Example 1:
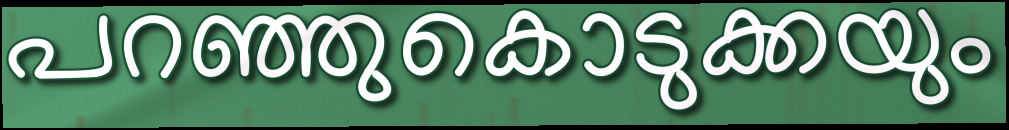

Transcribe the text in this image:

പറഞ്ഞുകൊടുക്കയും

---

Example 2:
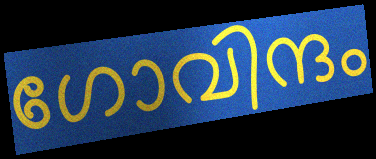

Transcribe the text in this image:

ഗോവിന്ദം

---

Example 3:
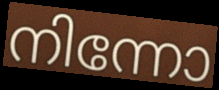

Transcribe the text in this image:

നിന്നോ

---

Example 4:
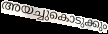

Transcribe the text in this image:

അയച്ചുകൊടുക്കും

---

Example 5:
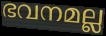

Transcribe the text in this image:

ഭവനമല്ല